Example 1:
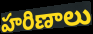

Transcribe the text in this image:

హరిణాలు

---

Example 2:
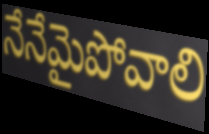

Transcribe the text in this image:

నేనేమైపోవాలి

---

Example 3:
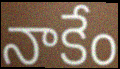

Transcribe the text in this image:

నాకేం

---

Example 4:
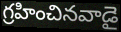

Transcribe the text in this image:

గ్రహించినవాడై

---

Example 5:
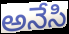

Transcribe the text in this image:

అనేసి